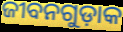
ଜୀବନଗୁଡ଼ାକ